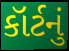
કૉર્ટનું